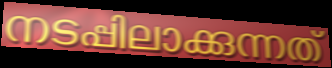
നടപ്പിലാക്കുന്നത്